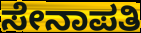
ಸೇನಾಪತಿ